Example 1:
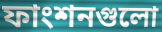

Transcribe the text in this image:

ফাংশনগুলো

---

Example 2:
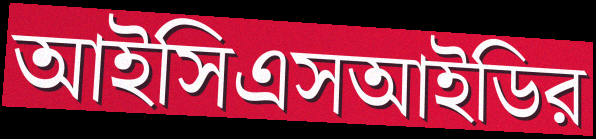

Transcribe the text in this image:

আইসিএসআইডির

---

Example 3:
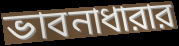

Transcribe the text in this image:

ভাবনাধারার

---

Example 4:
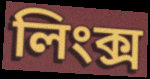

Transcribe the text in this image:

লিংক্স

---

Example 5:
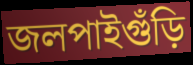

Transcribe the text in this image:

জলপাইগুঁড়ি